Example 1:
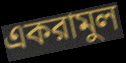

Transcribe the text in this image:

একরামুল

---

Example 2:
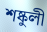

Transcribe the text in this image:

শষ্কুলী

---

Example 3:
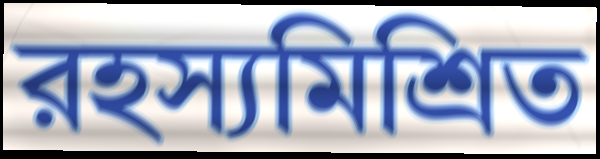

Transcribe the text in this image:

রহস্যমিশ্রিত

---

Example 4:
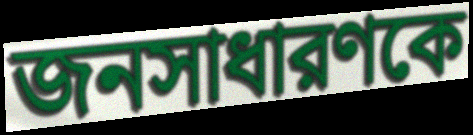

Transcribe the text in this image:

জনসাধারণকে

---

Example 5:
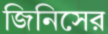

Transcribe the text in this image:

জিনিসের